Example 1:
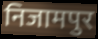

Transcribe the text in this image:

निजामपुर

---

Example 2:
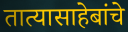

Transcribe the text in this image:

तात्यासाहेबांचे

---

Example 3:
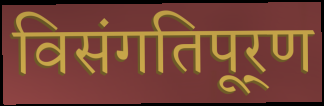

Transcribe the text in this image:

विसंगतिपूर्ण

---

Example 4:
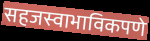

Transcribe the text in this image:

सहजस्वाभाविकपणे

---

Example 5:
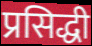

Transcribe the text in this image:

प्रसिद्धी